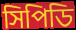
সিপিডি